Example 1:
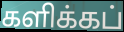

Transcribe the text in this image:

களிக்கப்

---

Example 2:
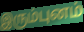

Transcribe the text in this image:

இரும்புனம்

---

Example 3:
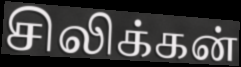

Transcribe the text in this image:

சிலிக்கன்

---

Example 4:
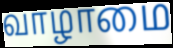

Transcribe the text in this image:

வாழாமை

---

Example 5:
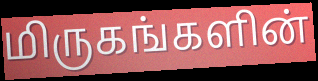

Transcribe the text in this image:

மிருகங்களின்